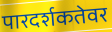
पारदर्शकतेवर